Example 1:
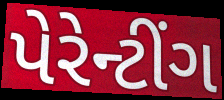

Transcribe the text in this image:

પેરેન્ટીંગ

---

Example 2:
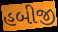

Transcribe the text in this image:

હબીજી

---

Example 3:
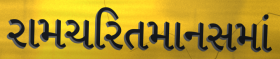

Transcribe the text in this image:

રામચરિતમાનસમાં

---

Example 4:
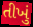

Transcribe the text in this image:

તીખું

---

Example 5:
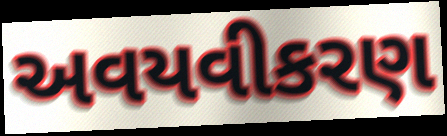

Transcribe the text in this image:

અવયવીકરણ